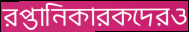
রপ্তানিকারকদেরও